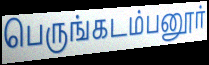
பெருங்கடம்பனூர்